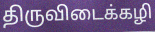
திருவிடைக்கழி